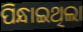
ପିନ୍ଧାଇଥିଲା